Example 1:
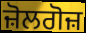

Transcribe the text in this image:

ਜ਼ੋਲਗੋਜ਼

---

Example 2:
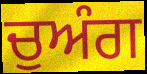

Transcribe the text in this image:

ਚੁਅੰਗ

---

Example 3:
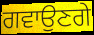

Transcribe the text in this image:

ਗਵਾਉਣਗੇ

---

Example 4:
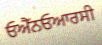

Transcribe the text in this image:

ਓਐੱਨਓਆਰਸੀ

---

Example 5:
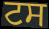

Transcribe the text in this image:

ਟਸ